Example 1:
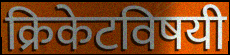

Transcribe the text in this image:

क्रिकेटविषयी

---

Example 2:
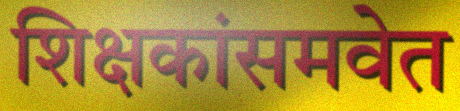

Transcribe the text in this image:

शिक्षकांसमवेत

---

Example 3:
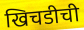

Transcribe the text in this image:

खिचडीची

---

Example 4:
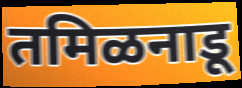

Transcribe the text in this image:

तमिळनाडू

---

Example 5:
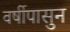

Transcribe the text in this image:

वर्षीपासुन